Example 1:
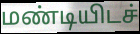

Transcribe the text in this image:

மண்டியிடச்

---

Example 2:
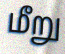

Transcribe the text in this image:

மீறு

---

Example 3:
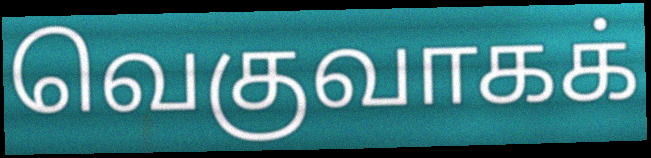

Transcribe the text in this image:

வெகுவாகக்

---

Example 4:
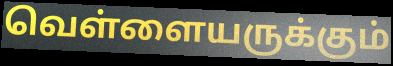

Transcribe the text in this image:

வெள்ளையருக்கும்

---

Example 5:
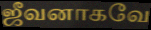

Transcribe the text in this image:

ஜீவனாகவே